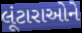
લૂંટારાઓને